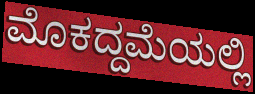
ಮೊಕದ್ದಮೆಯಲ್ಲಿ